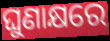
ଘୁଣାକ୍ଷରେ